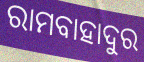
ରାମବାହାଦୁର